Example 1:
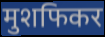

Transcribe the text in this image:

मुशफिकर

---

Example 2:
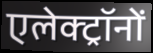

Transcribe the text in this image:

एलेक्ट्रॉनों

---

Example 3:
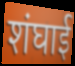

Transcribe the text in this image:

शंघाई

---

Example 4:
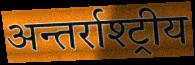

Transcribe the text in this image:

अन्तर्राश्ट्रीय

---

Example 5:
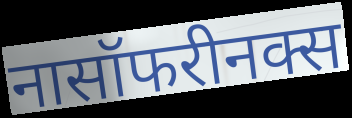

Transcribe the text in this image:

नासॉफरीनक्स